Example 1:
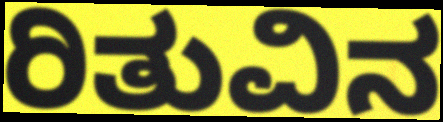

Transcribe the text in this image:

ರಿತುವಿನ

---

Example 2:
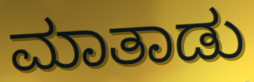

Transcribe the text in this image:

ಮಾತಾಡು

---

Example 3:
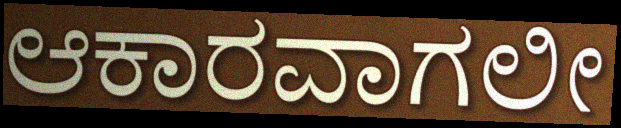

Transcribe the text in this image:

ಆಕಾರವಾಗಲೀ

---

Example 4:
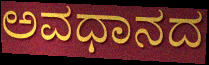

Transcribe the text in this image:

ಅವಧಾನದ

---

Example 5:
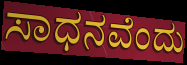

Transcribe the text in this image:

ಸಾಧನವೆಂದು